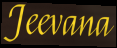
Jeevana